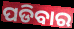
ପଡିବାର